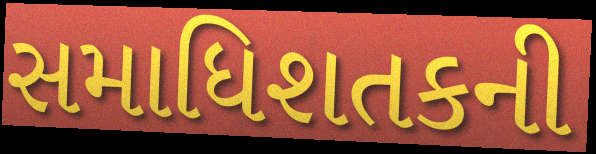
સમાધિશતકની